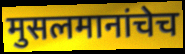
मुसलमानांचेच